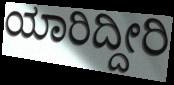
ಯಾರಿದ್ದೀರಿ